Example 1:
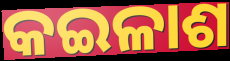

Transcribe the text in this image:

କଇଳାଶ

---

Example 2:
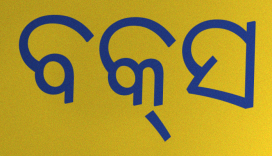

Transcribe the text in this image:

ବକ୍‍ସ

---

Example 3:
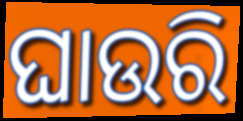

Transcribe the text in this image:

ଘାଉରି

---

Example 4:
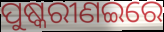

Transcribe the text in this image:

ପୁଷ୍କରୀଣଇରେ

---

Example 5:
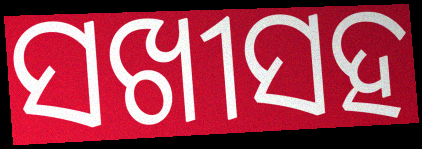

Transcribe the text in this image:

ସଖୀସହ